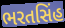
ભરતસિંહ